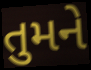
તુમને